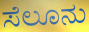
ಸೆಲೂನು